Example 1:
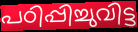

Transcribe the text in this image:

പഠിപ്പിച്ചുവിട്ട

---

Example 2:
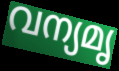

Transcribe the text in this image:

വന്യമൃ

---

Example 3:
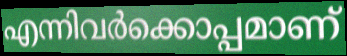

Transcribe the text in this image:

എന്നിവർക്കൊപ്പമാണ്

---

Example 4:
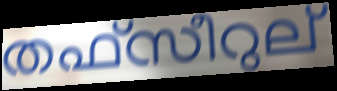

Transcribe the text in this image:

തഫ്സീറുല്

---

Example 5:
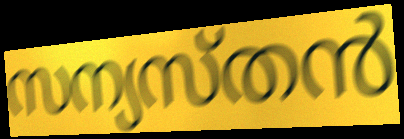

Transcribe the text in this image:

സന്യസ്തൻ